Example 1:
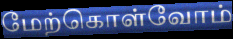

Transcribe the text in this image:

மேற்கொள்வோம்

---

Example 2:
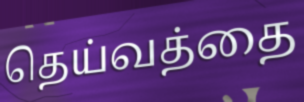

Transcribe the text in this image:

தெய்வத்தை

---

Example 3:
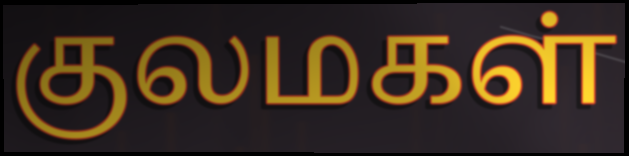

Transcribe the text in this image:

குலமகள்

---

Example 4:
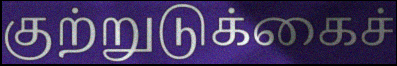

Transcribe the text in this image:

குற்றுடுக்கைச்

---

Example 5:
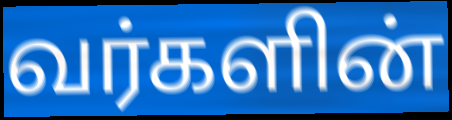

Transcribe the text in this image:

வர்களின்